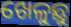
ଖେଳୁଛୁ